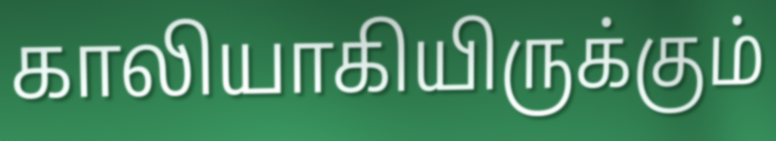
காலியாகியிருக்கும்